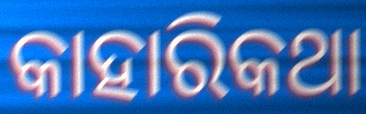
କାହାରିକଥା